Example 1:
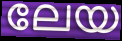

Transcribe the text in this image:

ലേയ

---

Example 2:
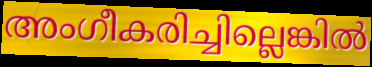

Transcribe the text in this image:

അംഗീകരിച്ചില്ലെങ്കിൽ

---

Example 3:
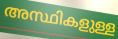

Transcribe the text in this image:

അസ്ഥികളുള്ള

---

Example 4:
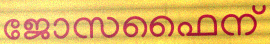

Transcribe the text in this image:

ജോസഫൈന്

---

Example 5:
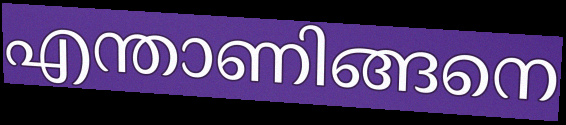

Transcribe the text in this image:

എന്താണിങ്ങനെ